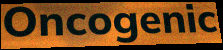
Oncogenic